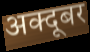
अक्दूबर